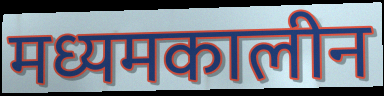
मध्यमकालीन